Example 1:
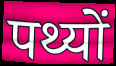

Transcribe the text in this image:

पथ्यों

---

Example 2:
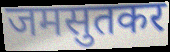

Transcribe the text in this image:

जमसुतकर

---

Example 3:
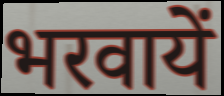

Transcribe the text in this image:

भरवायें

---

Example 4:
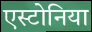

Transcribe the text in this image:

एस्टोनिया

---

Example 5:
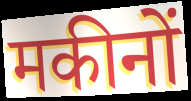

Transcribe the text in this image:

मकीनों